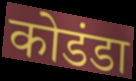
कोडंडा